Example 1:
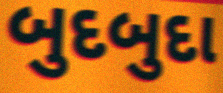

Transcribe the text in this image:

બુદબુદા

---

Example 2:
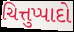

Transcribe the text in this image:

ચિત્તુપ્પાદો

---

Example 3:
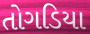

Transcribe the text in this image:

તોગડિયા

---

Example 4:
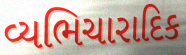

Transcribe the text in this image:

વ્યભિચારાદિક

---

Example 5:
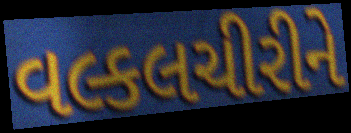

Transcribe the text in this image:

વલ્કલચીરીને